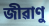
জীৱাণু